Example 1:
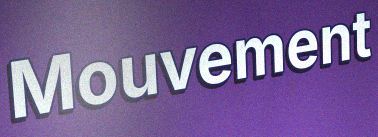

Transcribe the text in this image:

Mouvement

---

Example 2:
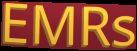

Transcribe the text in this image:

EMRs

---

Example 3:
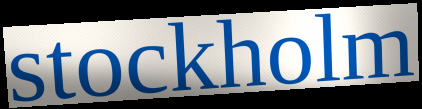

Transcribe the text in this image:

stockholm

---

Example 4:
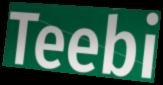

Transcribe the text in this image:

Teebi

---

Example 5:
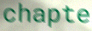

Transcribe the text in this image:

chapte